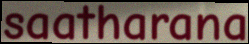
saatharana